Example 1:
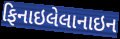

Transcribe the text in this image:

ફિનાઇલેલાનાઇન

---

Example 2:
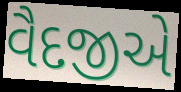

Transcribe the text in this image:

વૈદજીએ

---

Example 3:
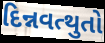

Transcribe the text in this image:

દિન્નવત્થુતો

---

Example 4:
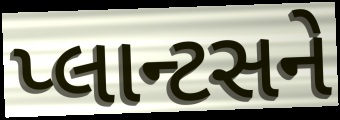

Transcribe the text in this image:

પ્લાન્ટસને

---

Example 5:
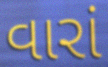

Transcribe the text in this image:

વારાં